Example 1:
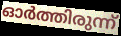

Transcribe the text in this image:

ഓർത്തിരുന്ന്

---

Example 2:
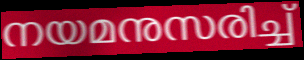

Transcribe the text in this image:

നയമനുസരിച്ച്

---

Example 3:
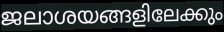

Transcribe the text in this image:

ജലാശയങ്ങളിലേക്കും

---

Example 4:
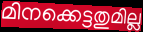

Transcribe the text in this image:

മിനക്കെട്ടതുമില്ല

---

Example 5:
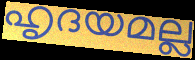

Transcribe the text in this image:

ഹൃദയമല്ല